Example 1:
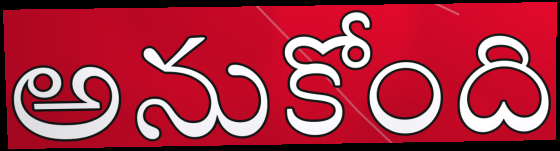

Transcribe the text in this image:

అనుకోంది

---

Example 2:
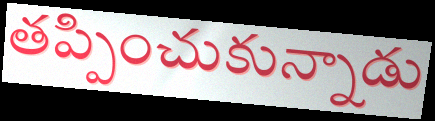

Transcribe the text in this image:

తప్పించుకున్నాడు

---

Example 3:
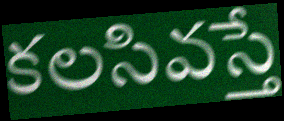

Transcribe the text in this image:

కలసివస్తే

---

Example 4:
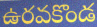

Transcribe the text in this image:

ఉరవకొండ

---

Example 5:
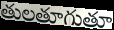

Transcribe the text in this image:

తులతూగుతూ